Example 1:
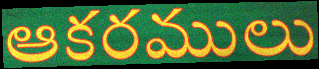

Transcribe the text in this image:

ఆకరములు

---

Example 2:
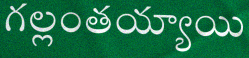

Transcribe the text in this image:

గల్లంతయ్యాయి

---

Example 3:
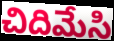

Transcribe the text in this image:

చిదిమేసి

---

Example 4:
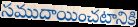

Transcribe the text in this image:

సముదాయించటానికి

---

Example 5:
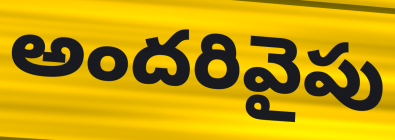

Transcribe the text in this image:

అందరివైపు